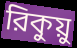
রিকুয়ু